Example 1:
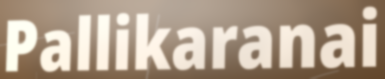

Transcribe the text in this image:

Pallikaranai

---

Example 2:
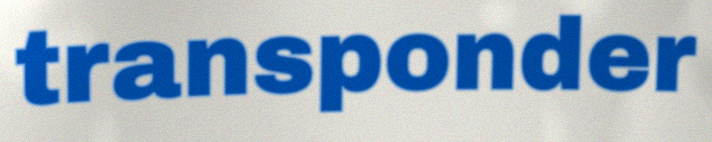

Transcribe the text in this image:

transponder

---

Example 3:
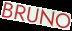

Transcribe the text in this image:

BRUNO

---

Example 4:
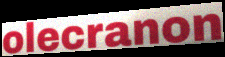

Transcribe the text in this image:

olecranon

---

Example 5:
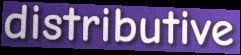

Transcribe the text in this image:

distributive